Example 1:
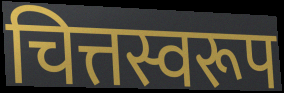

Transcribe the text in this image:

चित्तस्वरूप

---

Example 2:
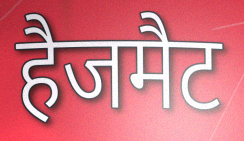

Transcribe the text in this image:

हैजमैट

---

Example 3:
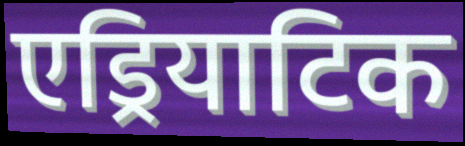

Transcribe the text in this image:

एड्रियाटिक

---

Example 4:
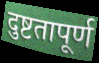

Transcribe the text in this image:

दुष्टतापूर्ण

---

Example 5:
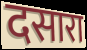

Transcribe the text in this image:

दसारा